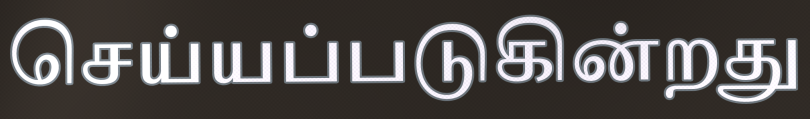
செய்யப்படுகின்றது